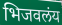
भिजवलंय